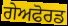
ਗੇਅਫੋਰਡ